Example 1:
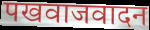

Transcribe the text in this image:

पखवाजवादन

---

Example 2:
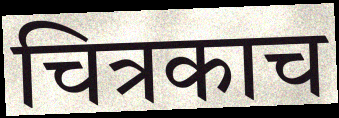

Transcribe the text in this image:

चित्रकाच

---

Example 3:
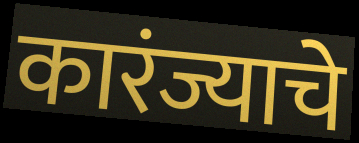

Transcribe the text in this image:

कारंज्याचे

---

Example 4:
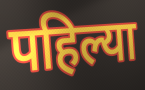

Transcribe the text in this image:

पहिल्या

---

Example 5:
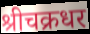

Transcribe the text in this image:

श्रीचक्रधर